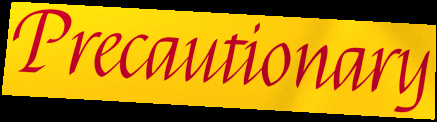
Precautionary